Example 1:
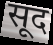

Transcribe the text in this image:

सूद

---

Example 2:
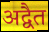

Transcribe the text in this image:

अद्वैत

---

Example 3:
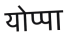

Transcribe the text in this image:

योप्पा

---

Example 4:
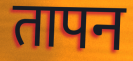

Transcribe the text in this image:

तापन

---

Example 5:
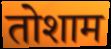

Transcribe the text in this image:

तोशाम